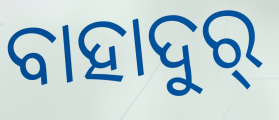
ବାହାଦୁର୍